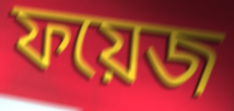
ফয়েজ